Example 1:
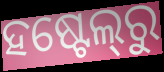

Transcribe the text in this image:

ହଷ୍ଟେଲ୍‍ରୁ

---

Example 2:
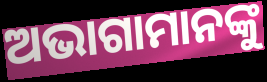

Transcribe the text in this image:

ଅଭାଗାମାନଙ୍କୁ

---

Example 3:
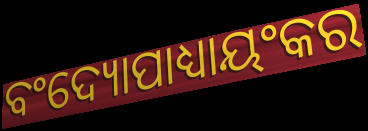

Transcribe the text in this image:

ବଂଦ୍ୟୋପାଧ୍ୟାୟଂକର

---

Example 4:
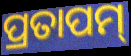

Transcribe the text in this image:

ପ୍ରତାପମ୍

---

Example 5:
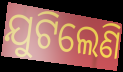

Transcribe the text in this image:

ଯୁଟିଲେଣି